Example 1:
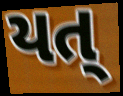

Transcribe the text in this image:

યત્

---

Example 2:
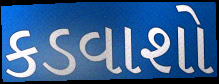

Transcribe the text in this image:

કડવાશો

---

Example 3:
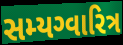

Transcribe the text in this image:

સમ્યગ્વારિત્ર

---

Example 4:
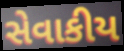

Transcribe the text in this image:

સેવાકીય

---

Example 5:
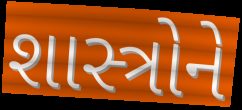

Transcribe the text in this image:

શાસ્ત્રોને